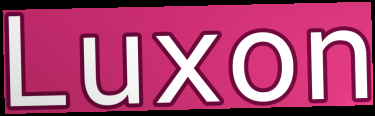
Luxon